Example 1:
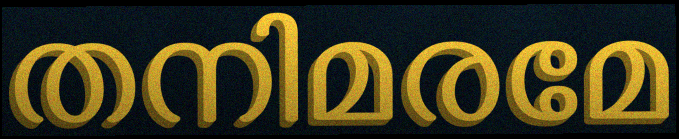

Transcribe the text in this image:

തനിമരമേ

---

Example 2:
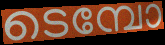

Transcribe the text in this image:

ടെമ്പോ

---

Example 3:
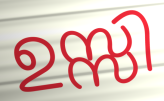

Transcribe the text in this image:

ഉസ്സി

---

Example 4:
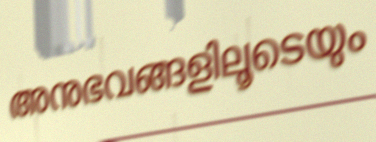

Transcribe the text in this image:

അനുഭവങ്ങളിലൂടെയും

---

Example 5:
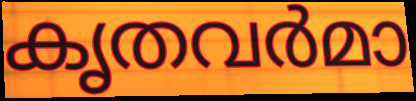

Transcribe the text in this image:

കൃതവർമാ